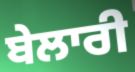
ਬੇਲਾਰੀ